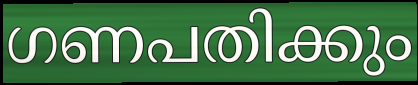
ഗണപതിക്കും